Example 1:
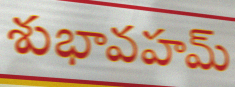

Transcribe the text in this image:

శుభావహమ్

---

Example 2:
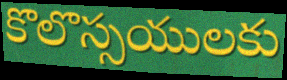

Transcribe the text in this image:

కొలొస్సయులకు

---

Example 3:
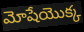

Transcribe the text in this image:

మోషేయొక్క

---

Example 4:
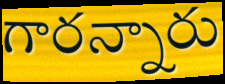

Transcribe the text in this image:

గారన్నారు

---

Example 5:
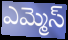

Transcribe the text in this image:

ఎమ్మెస్